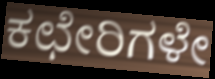
ಕಛೇರಿಗಳೇ